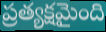
ప్రత్యక్షమైంది